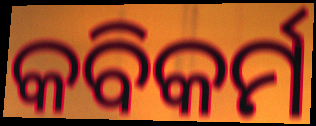
କବିକର୍ମ